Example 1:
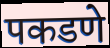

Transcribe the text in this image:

पकडणे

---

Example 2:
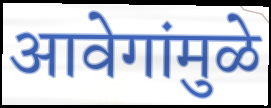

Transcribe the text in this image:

आवेगांमुळे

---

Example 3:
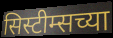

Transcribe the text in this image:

सिस्टीम्सच्या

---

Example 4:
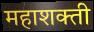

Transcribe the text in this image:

महाशक्ती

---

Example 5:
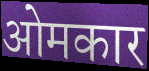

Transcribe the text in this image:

ओमकार